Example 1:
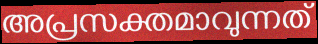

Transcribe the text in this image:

അപ്രസക്തമാവുന്നത്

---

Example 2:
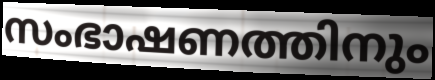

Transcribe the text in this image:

സംഭാഷണത്തിനും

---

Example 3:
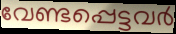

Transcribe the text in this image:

വേണ്ടപ്പെട്ടവർ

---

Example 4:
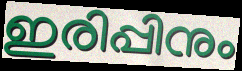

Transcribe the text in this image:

ഇരിപ്പിനും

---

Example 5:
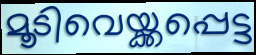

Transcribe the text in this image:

മൂടിവെയ്ക്കപ്പെട്ട